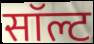
सॉल्‍ट